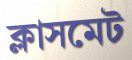
ক্লাসমেট